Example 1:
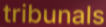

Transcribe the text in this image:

tribunals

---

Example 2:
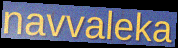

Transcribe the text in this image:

navvaleka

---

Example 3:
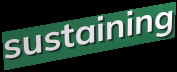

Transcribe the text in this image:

sustaining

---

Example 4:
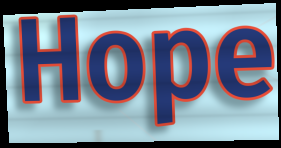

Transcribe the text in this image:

Hope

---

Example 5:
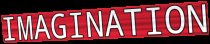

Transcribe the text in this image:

IMAGINATION